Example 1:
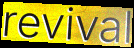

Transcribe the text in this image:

revival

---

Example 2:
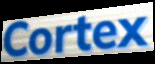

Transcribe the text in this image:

Cortex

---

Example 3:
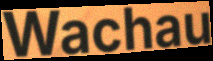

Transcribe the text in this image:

Wachau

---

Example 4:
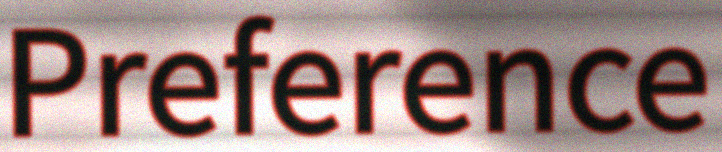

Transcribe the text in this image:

Preference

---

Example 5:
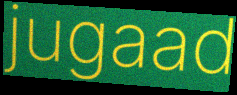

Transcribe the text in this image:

jugaad